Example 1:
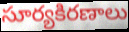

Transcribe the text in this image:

సూర్యకిరణాలు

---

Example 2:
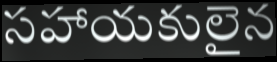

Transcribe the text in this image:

సహాయకులైన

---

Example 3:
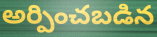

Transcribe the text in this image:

అర్పించబడిన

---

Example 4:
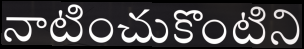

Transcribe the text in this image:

నాటించుకొంటిని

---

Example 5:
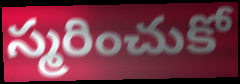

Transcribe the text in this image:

స్మరించుకో